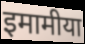
इमामीया